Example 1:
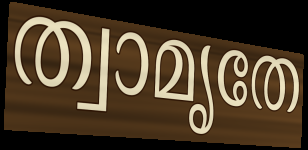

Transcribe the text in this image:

ത്വാമൃതേ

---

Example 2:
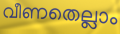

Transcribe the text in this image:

വീണതെല്ലാം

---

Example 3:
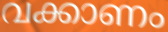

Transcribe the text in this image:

വക്കാണം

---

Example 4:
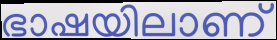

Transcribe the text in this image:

ഭാഷയിലാണ്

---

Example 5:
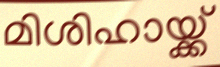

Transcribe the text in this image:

മിശിഹായ്ക്ക്